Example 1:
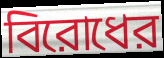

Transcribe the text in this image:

বিরোধের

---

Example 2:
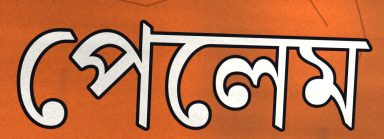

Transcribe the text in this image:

পেলেম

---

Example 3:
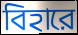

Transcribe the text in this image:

বিহারে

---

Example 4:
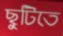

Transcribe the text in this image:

ছুটিতে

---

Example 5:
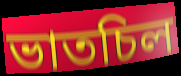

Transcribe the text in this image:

ভাতচিল